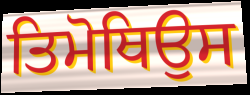
ਤਿਮੋਥਿਉਸ